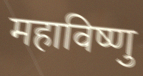
महाविष्णु